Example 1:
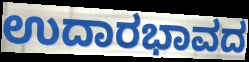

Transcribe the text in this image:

ಉದಾರಭಾವದ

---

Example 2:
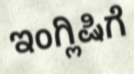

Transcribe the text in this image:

ಇಂಗ್ಲಿಷಿಗೆ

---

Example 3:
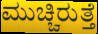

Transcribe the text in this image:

ಮುಚ್ಚಿರುತ್ತೆ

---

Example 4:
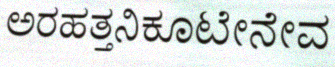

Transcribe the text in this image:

ಅರಹತ್ತನಿಕೂಟೇನೇವ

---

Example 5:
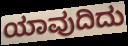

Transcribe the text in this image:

ಯಾವುದಿದು